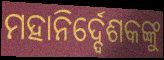
ମହାନିର୍ଦ୍ଦେଶକଙ୍କୁ